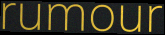
rumour